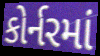
કોર્નરમાં